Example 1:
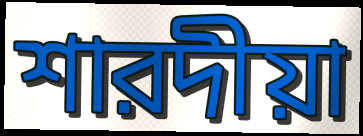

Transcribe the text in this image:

শারদীয়া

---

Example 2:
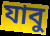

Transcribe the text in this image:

যাবু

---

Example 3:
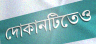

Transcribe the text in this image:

দোকানটিতেও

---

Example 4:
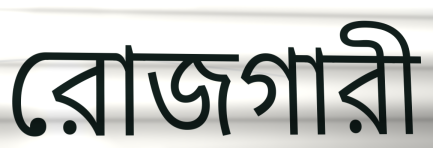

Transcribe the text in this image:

রোজগারী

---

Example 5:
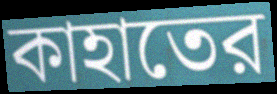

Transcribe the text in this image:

কাহাতের